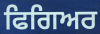
ਫਿਗਿਅਰ